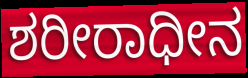
ಶರೀರಾಧೀನ